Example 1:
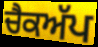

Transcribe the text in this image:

ਚੈਕਅੱਪ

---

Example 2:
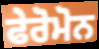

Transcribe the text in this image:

ਫੇਰੋਮੋਨ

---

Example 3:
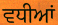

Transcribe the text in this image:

ਵਧੀਆਂ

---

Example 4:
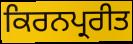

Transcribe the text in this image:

ਕਿਰਨਪ੍ਰਰੀਤ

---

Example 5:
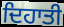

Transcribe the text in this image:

ਦਿਹਾਤੀ